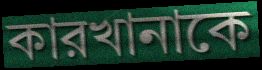
কারখানাকে